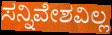
ಸನ್ನಿವೇಶವಿಲ್ಲ